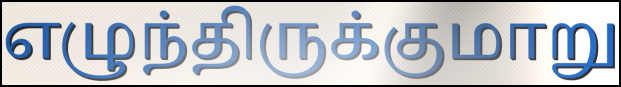
எழுந்திருக்குமாறு